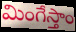
మింగేస్తాం